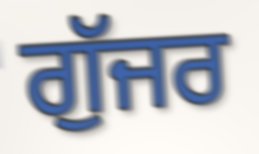
ਗੁੱਜਰ